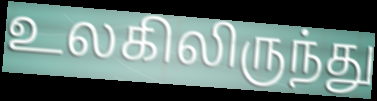
உலகிலிருந்து